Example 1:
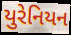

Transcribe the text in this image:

યુરેનિયન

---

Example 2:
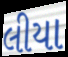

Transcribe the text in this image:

લીયા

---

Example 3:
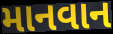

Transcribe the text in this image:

માનવાન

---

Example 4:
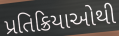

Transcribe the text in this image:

પ્રતિક્રિયાઓથી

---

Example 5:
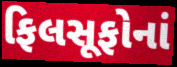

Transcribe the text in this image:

ફિલસૂફોનાં